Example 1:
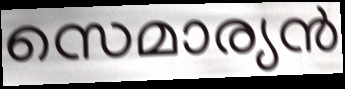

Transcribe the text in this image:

സെമാര്യൻ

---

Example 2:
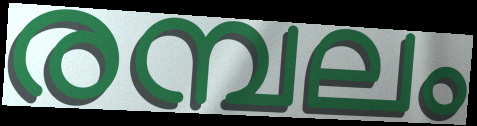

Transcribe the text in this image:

രമ്പലം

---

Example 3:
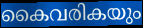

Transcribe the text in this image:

കൈവരികയും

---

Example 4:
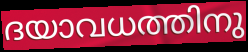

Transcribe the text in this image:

ദയാവധത്തിനു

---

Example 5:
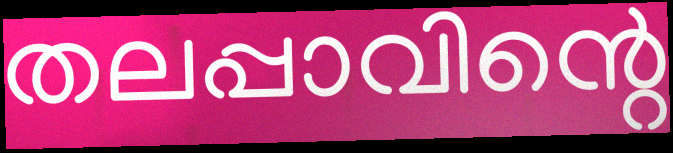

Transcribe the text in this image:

തലപ്പാവിന്റെ